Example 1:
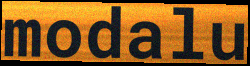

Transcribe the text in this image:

modalu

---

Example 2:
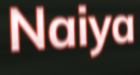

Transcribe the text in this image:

Naiya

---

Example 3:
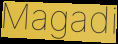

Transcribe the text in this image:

Magadi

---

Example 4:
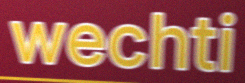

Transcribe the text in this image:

wechti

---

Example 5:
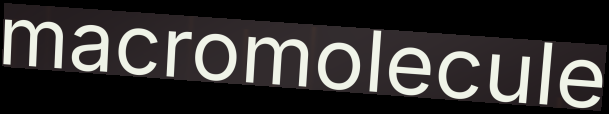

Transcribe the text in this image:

macromolecule